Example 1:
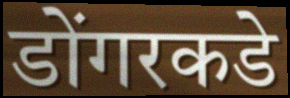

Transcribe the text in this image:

डोंगरकडे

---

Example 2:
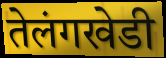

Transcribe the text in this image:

तेलंगखेडी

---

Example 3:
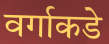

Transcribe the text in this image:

वर्गाकडे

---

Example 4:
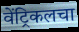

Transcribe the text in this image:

वेंट्रिकलचा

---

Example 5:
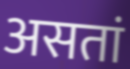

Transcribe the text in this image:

असतां